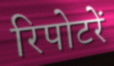
रिपोटरें